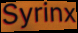
Syrinx